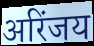
अरिंजय